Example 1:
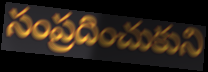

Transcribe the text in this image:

సంప్రదించుకుని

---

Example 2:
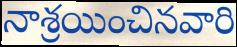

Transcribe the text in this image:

నాశ్రయించినవారి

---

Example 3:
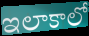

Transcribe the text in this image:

ఇలాకాలో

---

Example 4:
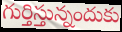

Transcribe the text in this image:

గుర్తిస్తున్నందుకు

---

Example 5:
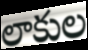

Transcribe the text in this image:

లాకుల